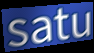
satu